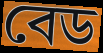
বেড